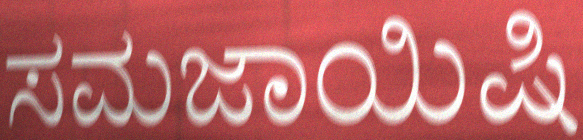
ಸಮಜಾಯಿಷಿ